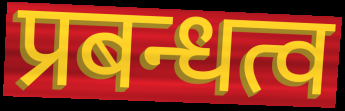
प्रबन्धत्व